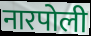
नारपोली